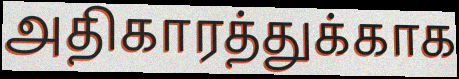
அதிகாரத்துக்காக